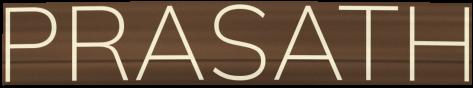
PRASATH